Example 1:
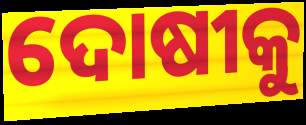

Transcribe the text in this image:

ଦୋଷୀକୁ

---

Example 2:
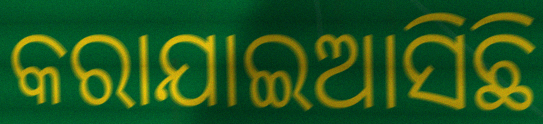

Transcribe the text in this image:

କରାଯାଇଆସିଛି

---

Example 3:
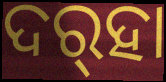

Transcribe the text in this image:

ଦର୍‌ହା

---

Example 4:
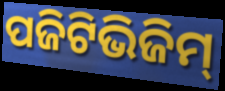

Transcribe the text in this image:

ପଜିଟିଭିଜିମ୍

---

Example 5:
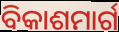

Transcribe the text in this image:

ବିକାଶମାର୍ଗ